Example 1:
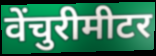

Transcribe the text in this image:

वेंचुरीमीटर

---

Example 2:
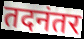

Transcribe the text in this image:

तदनंतर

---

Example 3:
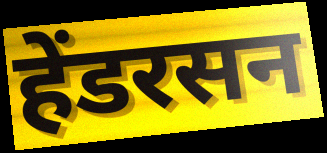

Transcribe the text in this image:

हेंडरसन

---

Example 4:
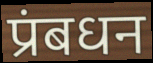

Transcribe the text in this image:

प्रंबधन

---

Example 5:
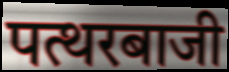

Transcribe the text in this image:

पत्थरबाजी